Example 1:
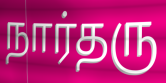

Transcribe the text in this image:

நார்தரு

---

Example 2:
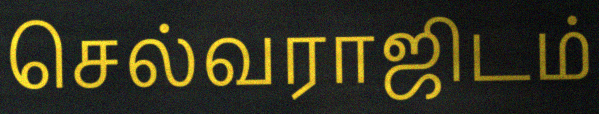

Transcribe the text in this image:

செல்வராஜிடம்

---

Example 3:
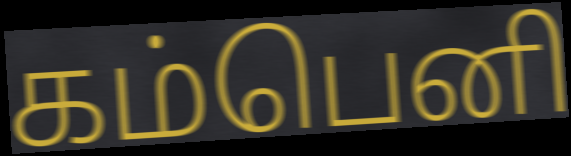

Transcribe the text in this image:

கம்பெனி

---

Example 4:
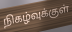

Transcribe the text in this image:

நிகழ்வுக்குள்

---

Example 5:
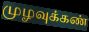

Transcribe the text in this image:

முழவுக்கண்